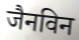
जैनविन